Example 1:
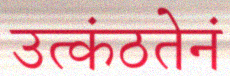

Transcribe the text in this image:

उत्कंठतेनं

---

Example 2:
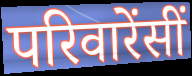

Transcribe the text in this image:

परिवारेंसीं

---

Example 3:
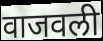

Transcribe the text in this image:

वाजवली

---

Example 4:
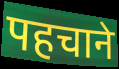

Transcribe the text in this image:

पहचाने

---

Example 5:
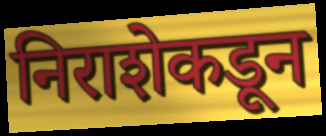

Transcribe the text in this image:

निराशेकडून